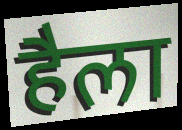
हैला